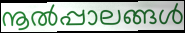
നൂൽപ്പാലങ്ങൾ